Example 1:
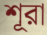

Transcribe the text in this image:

শূরা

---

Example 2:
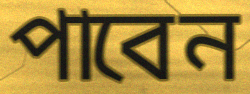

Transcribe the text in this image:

পাবেন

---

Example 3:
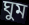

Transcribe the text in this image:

ঘুম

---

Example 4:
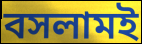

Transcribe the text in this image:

বসলামই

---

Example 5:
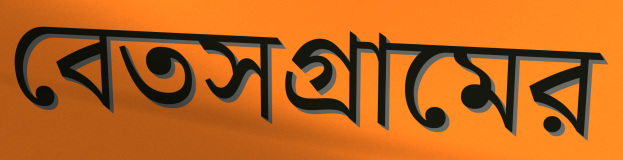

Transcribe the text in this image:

বেতসগ্রামের